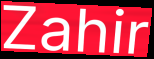
Zahir